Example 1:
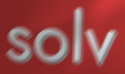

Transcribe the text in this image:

solv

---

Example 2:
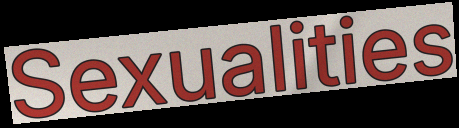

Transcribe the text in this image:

Sexualities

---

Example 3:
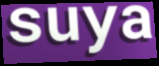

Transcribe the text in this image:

suya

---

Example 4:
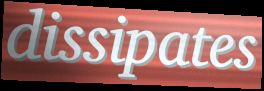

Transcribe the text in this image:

dissipates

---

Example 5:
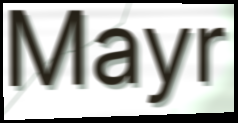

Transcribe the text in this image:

Mayr